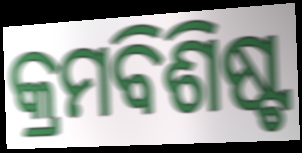
କ୍ରମବିଶିଷ୍ଟ